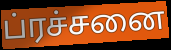
ப்ரச்சனை